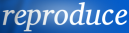
reproduce